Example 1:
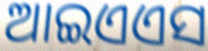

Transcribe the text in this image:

ଆଇଏଏସ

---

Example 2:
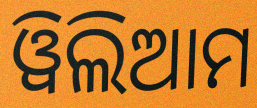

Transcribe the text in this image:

ୱିଲିଆମ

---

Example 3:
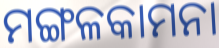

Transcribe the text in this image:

ମଙ୍ଗଳକାମନା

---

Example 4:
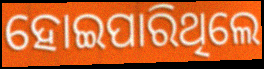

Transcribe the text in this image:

ହୋଇପାରିଥିଲେ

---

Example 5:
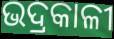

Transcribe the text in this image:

ଭଦ୍ରକାଳୀ